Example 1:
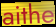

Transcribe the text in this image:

aithe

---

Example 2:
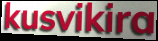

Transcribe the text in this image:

kusvikira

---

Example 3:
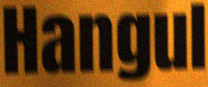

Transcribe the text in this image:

Hangul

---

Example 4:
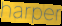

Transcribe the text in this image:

harper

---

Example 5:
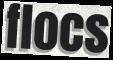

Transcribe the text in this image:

flocs